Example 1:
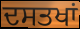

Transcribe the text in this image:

ਦਸਤਖਾਂ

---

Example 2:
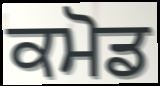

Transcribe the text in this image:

ਕਮੋਡ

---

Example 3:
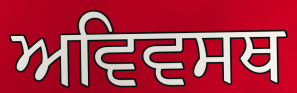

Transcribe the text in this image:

ਅਵਿਵਸਥ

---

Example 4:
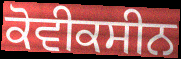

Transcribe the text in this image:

ਕੋਵੀਕਸੀਨ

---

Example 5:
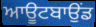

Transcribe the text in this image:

ਆਊਟਬਾਉਂਡ